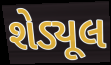
શેડ્યૂલ